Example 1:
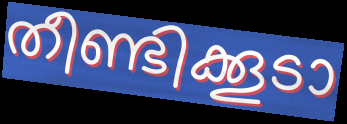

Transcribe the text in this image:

തീണ്ടിക്കൂടാ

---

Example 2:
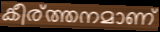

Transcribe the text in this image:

കീര്ത്തനമാണ്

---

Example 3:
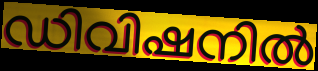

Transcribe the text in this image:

ഡിവിഷനിൽ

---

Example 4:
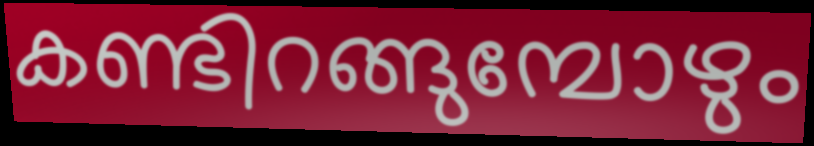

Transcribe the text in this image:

കണ്ടിറങ്ങുമ്പോഴും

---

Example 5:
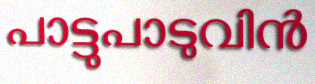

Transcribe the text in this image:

പാട്ടുപാടുവിൻ